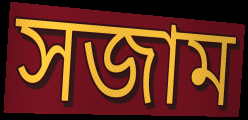
সজাম